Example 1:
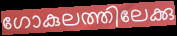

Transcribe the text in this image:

ഗോകുലത്തിലേക്കു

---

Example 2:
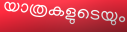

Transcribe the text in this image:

യാത്രകളുടെയും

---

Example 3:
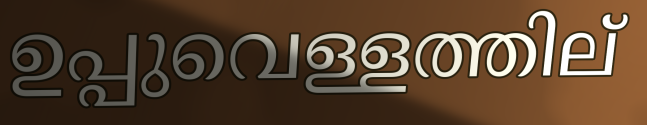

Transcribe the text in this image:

ഉപ്പുവെള്ളത്തില്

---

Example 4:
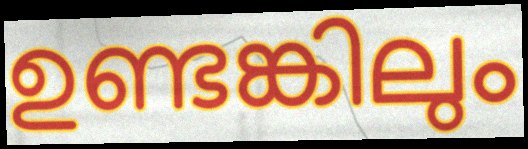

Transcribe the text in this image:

ഉണ്ടങ്കിലും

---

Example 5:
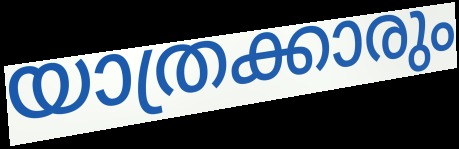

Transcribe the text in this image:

യാത്രക്കാരും